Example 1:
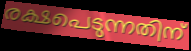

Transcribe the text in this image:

രക്ഷപെടുന്നതിന്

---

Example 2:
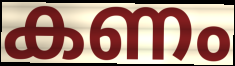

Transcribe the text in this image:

കണം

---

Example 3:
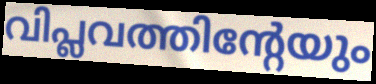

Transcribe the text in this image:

വിപ്ലവത്തിന്റേയും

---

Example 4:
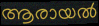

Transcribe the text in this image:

ആരായൽ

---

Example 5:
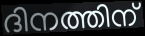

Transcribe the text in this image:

ദിനത്തിന്